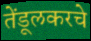
तेंडूलकरचे